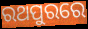
ରଥପୁରରେ